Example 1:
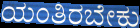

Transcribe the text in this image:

ಯಂತಿರಬೇಕು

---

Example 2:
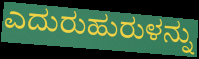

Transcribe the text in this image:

ಎದುರುಹುರುಳನ್ನು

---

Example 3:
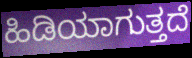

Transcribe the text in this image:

ಹಿಡಿಯಾಗುತ್ತದೆ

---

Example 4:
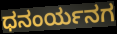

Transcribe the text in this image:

ಧನಂರ್ಯನಗ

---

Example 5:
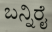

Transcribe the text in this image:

ಬನ್ನಿರೈ